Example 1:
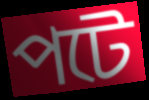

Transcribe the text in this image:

পটে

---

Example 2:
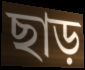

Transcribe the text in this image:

ছাড়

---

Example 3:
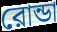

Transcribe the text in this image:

রোন্ডা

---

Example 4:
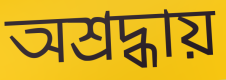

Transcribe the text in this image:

অশ্রদ্ধায়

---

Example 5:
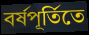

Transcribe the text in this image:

বর্ষপূর্তিতে